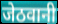
जेठवानी